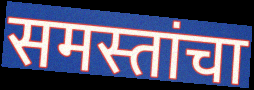
समस्तांचा